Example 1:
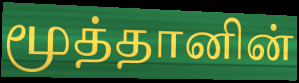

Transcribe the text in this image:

மூத்தானின்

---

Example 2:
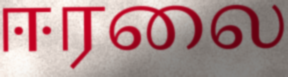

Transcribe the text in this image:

ஈரலை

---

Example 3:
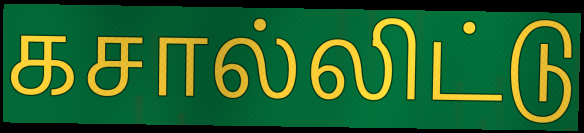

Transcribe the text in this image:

கசால்லிட்டு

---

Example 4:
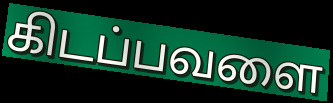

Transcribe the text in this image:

கிடப்பவளை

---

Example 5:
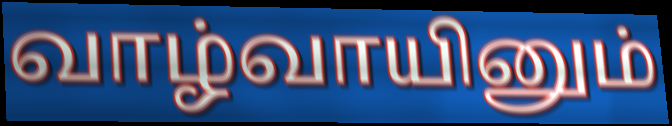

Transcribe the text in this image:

வாழ்வாயினும்